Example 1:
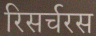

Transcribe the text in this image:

रिसर्चरस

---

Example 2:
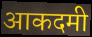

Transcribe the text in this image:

आकदमी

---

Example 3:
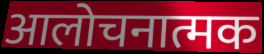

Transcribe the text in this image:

आलोचनात्मक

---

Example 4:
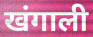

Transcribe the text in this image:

खंगाली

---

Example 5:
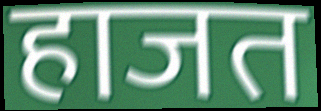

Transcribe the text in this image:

हाजत